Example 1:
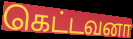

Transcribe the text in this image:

கெட்டவனா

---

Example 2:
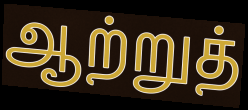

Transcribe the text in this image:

ஆற்றுத்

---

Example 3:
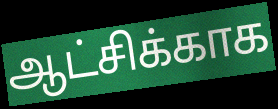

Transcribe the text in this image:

ஆட்சிக்காக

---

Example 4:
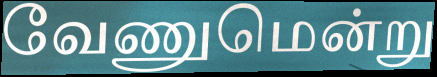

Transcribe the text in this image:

வேணுமென்று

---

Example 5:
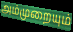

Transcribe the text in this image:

அம்முறையும்